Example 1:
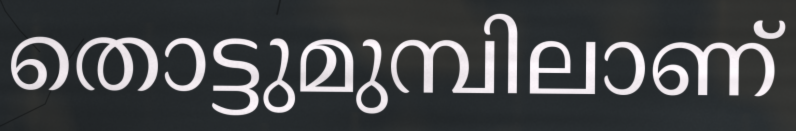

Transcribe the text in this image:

തൊട്ടുമുമ്പിലാണ്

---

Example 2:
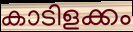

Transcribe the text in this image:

കാടിളക്കം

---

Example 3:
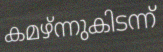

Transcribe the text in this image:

കമഴ്ന്നുകിടന്ന്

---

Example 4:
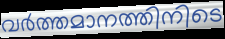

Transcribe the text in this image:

വർത്തമാനത്തിനിടെ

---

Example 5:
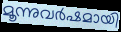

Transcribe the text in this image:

മൂന്നുവർഷമായി